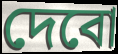
দেবো